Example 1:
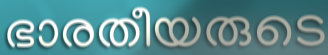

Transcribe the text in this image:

ഭാരതീയരുടെ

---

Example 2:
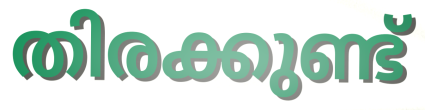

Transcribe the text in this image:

തിരക്കുണ്ട്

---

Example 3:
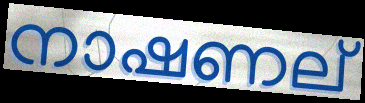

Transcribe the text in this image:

നാഷണല്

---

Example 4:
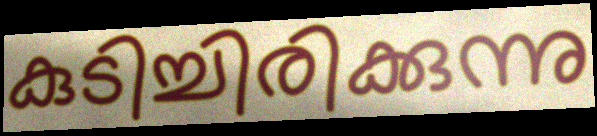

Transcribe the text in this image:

കുടിച്ചിരിക്കുന്നു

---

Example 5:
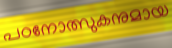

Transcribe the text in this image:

പഠനോത്സുകനുമായ